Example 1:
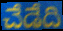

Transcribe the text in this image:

చేడేది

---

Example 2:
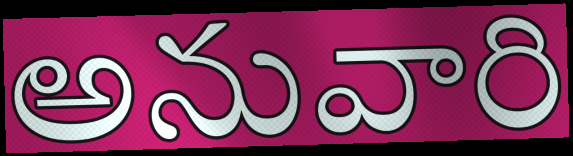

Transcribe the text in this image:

అనువారి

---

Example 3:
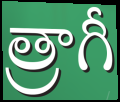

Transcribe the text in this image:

త్రాగీ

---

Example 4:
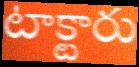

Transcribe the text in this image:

టాక్టారు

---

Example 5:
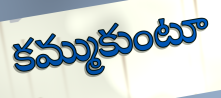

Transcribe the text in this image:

కమ్ముకుంటూ